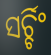
ସର୍ଚ୍ଚିଂ